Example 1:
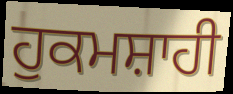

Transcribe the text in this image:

ਹੁਕਮਸ਼ਾਹੀ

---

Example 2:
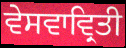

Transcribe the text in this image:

ਵੇਸਵਾਵ੍ਰਿਤੀ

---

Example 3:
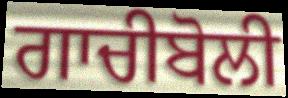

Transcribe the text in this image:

ਗਾਚੀਬੋਲੀ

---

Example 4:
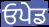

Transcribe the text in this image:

ਓਪੇਡ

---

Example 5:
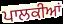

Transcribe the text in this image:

ਪਾਲਕੀਆਂ